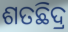
ଶତଛିଦ୍ର